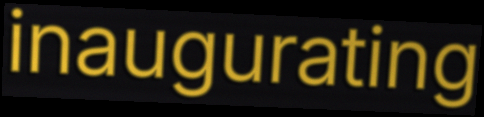
inaugurating